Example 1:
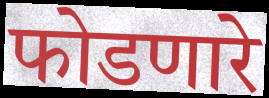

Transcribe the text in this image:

फोडणारे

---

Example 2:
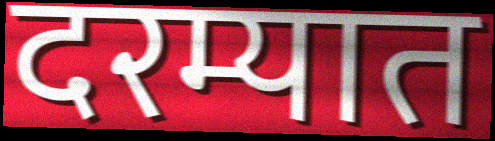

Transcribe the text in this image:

दरम्यात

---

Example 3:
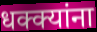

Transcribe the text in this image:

धक्क्यांना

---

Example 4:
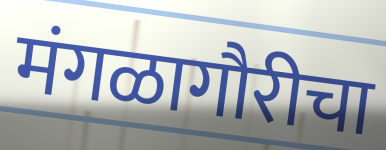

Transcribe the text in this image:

मंगळागौरीचा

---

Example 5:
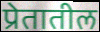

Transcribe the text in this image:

प्रेतातील